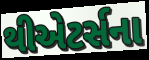
થીએટર્સના